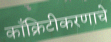
काँक्रिटीकरणाचे